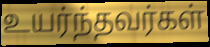
உயர்ந்தவர்கள்